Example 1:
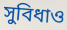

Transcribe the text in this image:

সুবিধাও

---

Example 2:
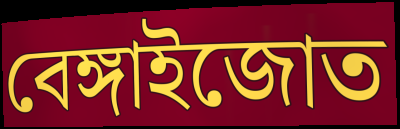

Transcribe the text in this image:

বেঙ্গাইজোত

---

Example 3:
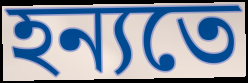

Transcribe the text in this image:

হন্যতে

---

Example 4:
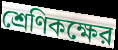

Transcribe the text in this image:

শ্রেণিকক্ষের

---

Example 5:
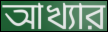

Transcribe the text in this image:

আখ্যার